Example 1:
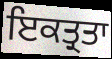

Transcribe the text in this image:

ਇਕਤ੍ਰਤਾ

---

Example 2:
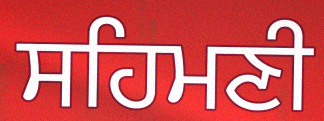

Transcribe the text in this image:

ਸਹਿਮਣੀ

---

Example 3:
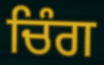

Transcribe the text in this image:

ਚਿੰਗ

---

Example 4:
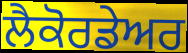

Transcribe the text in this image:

ਲੈਕੋਰਡੇਅਰ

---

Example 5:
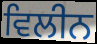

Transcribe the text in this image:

ਵਿਲੀਨ